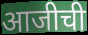
आजीची